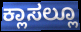
ಕ್ಲಾಸಲ್ಲೂ